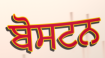
ਬੋਸਟਨ